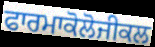
ਫਾਰਮਾਕੋਲੋਜੀਕਲ